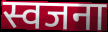
स्वजना